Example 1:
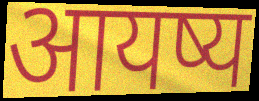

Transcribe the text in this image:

आयष्य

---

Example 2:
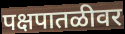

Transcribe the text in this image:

पक्षपातळीवर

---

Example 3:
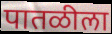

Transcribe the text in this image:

पातळीला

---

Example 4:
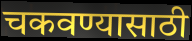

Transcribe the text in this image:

चकवण्यासाठी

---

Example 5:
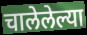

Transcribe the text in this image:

चालेलेल्या